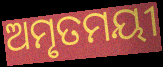
ଅମୃତମୟୀ